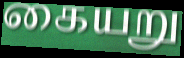
கையறு